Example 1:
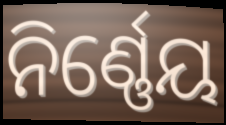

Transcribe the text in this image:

ନିର୍ଣ୍ଣେୟ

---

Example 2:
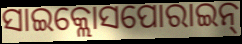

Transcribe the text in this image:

ସାଇକ୍ଲୋସପୋରାଇନ୍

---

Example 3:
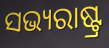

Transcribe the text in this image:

ସଭ୍ୟରାଷ୍ଟ୍ର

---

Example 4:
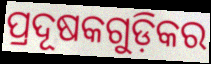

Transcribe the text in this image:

ପ୍ରଦୂଷକଗୁଡ଼ିକର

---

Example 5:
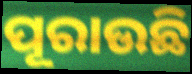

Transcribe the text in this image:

ପୂରାଉଛି